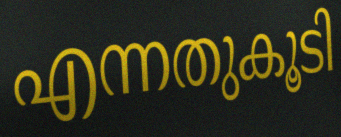
എന്നതുകൂടി